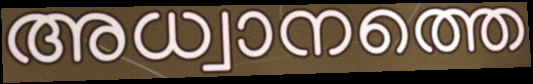
അധ്വാനത്തെ